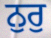
ਨੁਰੁ